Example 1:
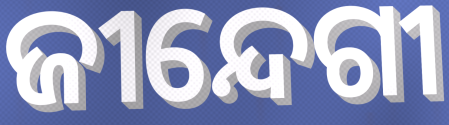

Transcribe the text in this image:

ଜୀନ୍ଦେଗୀ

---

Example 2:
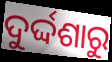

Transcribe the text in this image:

ଦୁର୍ଦ୍ଦଶାରୁ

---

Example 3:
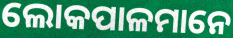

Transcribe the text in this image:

ଲୋକପାଳମାନେ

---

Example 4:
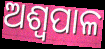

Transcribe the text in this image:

ଅଶ୍ୱପାଳ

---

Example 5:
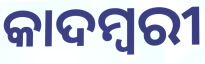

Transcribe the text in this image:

କାଦମ୍ୱରୀ